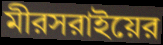
মীরসরাইয়ের